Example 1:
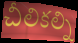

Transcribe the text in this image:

చీలికల్ని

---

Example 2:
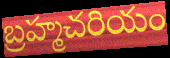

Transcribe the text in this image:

బ్రహ్మచరియం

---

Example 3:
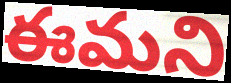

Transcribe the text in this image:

ఈమని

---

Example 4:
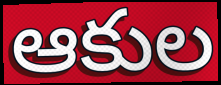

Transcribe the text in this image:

ఆకుల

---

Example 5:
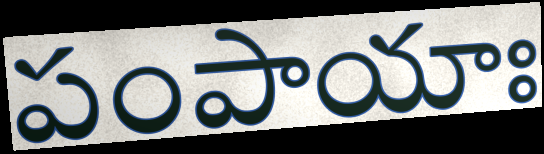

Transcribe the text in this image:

పంపాయాః